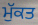
ਮੁੱਕਤ